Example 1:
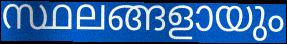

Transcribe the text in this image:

സ്ഥലങ്ങളായും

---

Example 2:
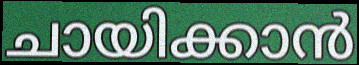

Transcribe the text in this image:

ചായിക്കാൻ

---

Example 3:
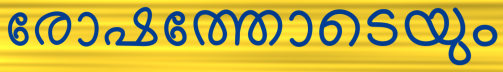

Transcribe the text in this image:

രോഷത്തോടെയും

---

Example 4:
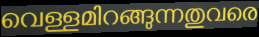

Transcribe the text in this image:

വെള്ളമിറങ്ങുന്നതുവരെ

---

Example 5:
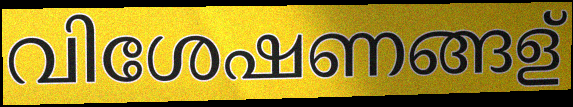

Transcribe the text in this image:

വിശേഷണങ്ങള്